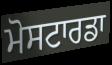
ਮੋਸਟਾਰਡਾ